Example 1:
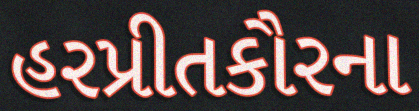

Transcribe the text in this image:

હરપ્રીતકૌરના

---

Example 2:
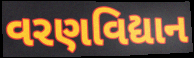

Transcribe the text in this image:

વરણવિદ્યાન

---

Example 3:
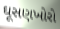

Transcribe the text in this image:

ઘૂસણખોરો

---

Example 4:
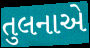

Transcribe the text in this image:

તુલનાએ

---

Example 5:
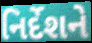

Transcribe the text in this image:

નિર્દેશને